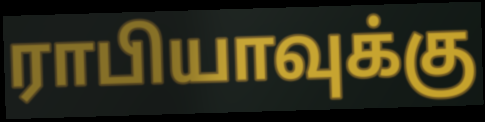
ராபியாவுக்கு